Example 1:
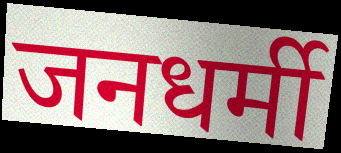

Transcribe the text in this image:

जनधर्मी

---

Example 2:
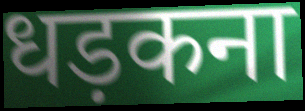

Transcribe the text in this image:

धड़कना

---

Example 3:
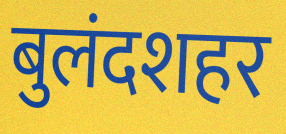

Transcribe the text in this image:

बुलंदशहर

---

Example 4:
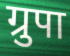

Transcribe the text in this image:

ग्रुपा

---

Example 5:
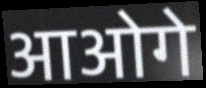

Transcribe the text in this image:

आओगे